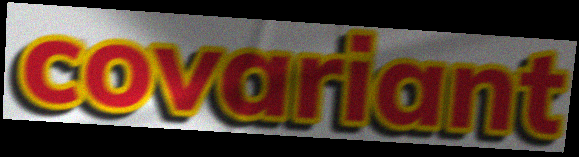
covariant